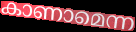
കാണാമെന്ന